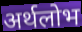
अर्थलोभ